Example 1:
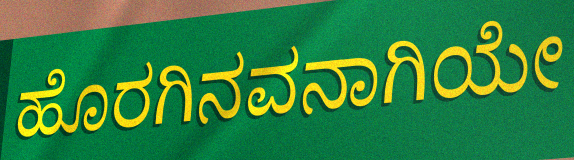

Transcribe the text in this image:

ಹೊರಗಿನವನಾಗಿಯೇ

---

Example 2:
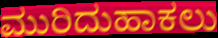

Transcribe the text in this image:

ಮುರಿದುಹಾಕಲು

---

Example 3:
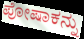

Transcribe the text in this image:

ಪೋಷಾಕನ್ನು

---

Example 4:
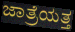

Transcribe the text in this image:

ಜಾತ್ರೆಯತ್ತ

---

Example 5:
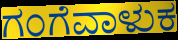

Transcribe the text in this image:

ಗಂಗೆವಾಳುಕ